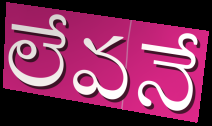
లేవనే